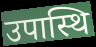
उपास्थि